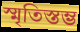
স্মৃতিস্তম্ভ